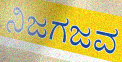
ನಿಜಗಜವ